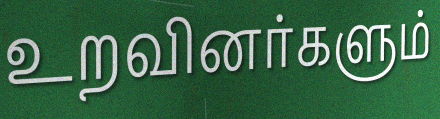
உறவினர்களும்